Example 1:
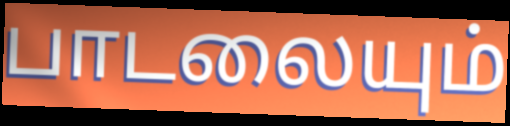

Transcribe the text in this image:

பாடலையும்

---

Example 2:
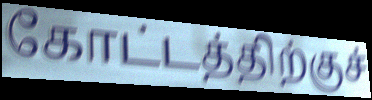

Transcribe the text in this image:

கோட்டத்திற்குச்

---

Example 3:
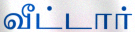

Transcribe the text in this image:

வீட்டார்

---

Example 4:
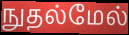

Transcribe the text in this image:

நுதல்மேல்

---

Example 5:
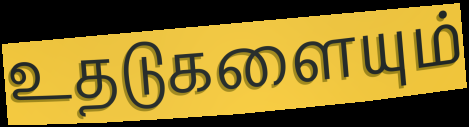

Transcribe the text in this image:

உதடுகளையும்